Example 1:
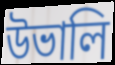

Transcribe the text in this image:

উভালি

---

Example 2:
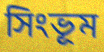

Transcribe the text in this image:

সিংভূম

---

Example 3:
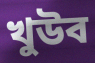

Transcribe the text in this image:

খুউব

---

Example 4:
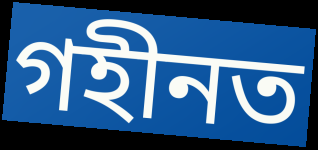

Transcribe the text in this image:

গহীনত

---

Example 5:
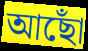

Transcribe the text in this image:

আছোঁ